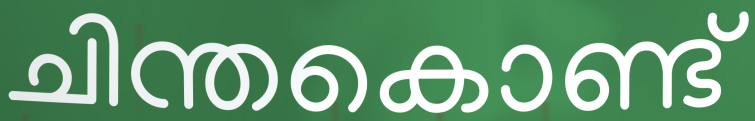
ചിന്തകൊണ്ട്